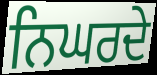
ਨਿਘਰਦੇ